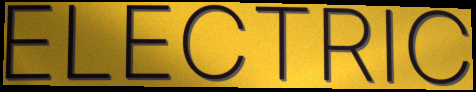
ELECTRIC